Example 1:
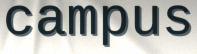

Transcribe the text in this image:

campus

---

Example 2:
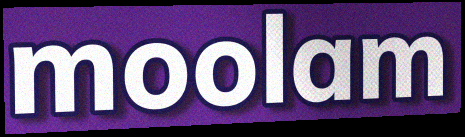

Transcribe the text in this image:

moolam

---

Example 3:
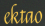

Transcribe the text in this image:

ektao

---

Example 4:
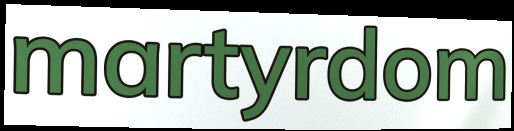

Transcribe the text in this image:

martyrdom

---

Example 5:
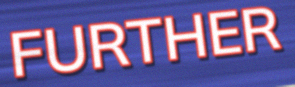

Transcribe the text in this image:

FURTHER